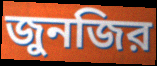
জুনজির